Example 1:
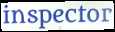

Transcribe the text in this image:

inspector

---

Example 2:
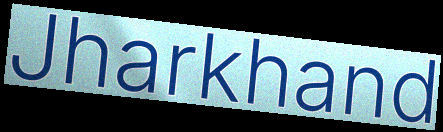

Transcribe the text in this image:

Jharkhand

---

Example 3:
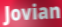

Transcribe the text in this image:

Jovian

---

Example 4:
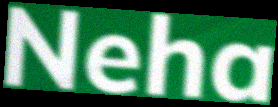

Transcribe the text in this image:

Neha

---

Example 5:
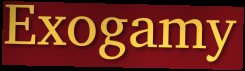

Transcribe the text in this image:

Exogamy